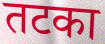
तटका